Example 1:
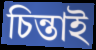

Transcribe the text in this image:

চিন্তাই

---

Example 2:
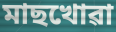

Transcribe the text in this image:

মাছখোৱা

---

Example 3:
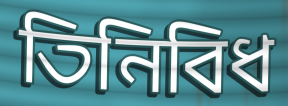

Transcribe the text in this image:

তিনিবিধ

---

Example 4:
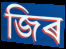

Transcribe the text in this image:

জিৰ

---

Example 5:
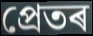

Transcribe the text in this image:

প্ৰেতৰ